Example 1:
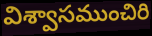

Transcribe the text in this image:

విశ్వాసముంచిరి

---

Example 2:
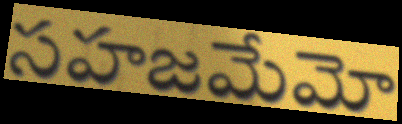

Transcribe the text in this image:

సహజమేమో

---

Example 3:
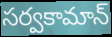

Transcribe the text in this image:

సర్వకామాన్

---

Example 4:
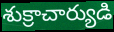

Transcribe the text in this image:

శుక్రాచార్యుడి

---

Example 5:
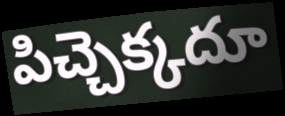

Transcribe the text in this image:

పిచ్చెక్కదూ